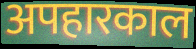
अपहारकाल